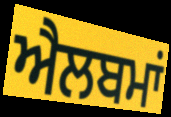
ਐਲਬਮਾਂ